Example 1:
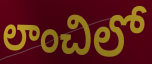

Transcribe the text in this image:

లాంచిలో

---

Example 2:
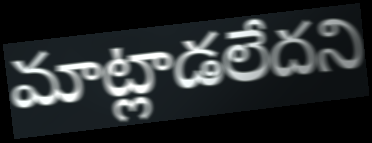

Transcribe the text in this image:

మాట్లాడలేదని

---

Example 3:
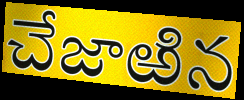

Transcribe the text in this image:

చేజాఱిన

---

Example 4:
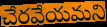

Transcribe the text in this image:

చేరవేయమని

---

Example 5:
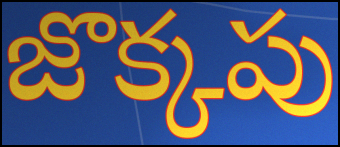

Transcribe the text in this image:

జొక్కపు